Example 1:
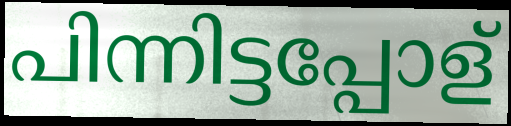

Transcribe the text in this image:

പിന്നിട്ടപ്പോള്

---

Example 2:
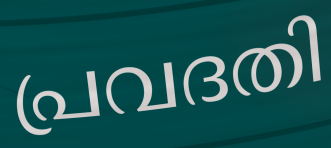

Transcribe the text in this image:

പ്രവദതി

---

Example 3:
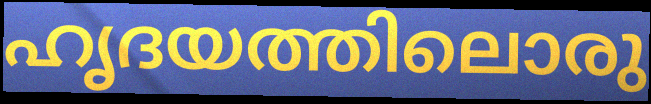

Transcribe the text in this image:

ഹൃദയത്തിലൊരു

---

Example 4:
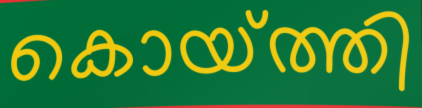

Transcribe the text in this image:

കൊയ്‌ത്തി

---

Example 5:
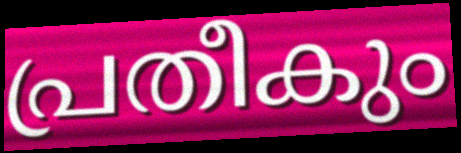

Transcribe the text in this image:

പ്രതീകും